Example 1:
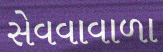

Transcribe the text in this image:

સેવવાવાળા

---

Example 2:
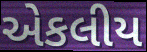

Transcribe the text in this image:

એકલીય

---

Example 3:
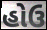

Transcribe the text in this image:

હોઉ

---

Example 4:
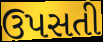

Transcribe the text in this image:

ઉપસતી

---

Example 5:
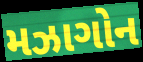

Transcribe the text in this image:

મઝાગોન